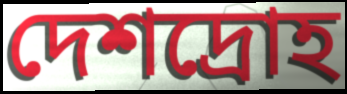
দেশদ্রোহ